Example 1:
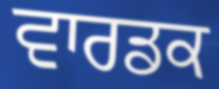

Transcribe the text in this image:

ਵਾਰਡਕ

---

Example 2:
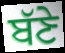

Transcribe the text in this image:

ਬੱਣੇ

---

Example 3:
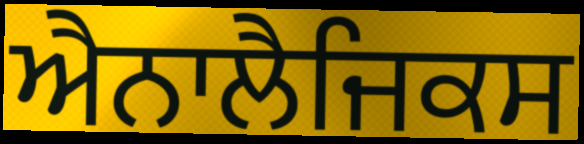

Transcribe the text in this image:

ਐਨਾਲੈਜਿਕਸ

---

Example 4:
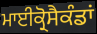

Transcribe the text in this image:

ਮਾਈਕ੍ਰੋਸੈਕੰਡਾਂ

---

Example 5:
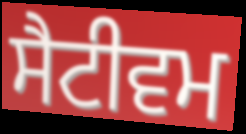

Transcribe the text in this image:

ਸੈਟੀਵਮ